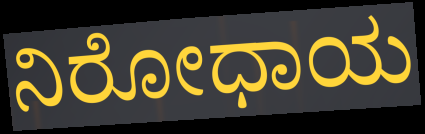
ನಿರೋಧಾಯ